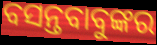
ବସନ୍ତବାବୁଙ୍କର